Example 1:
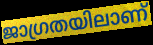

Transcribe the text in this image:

ജാഗ്രതയിലാണ്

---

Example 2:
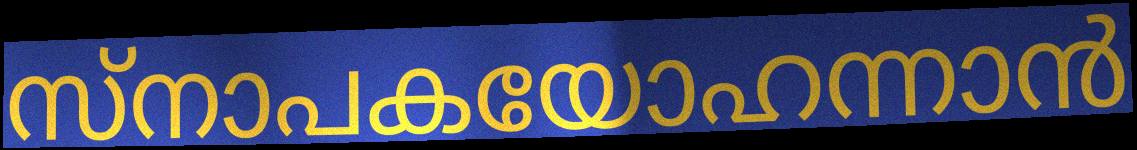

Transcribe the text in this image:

സ്നാപകയോഹന്നാൻ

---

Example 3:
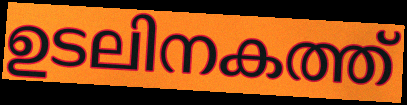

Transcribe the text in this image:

ഉടലിനകത്ത്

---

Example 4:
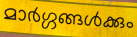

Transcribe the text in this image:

മാർഗ്ഗങ്ങൾക്കും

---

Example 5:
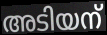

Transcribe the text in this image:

അടിയന്